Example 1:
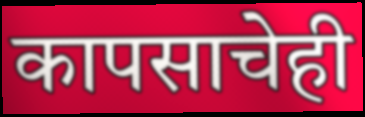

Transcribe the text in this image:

कापसाचेही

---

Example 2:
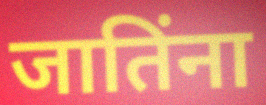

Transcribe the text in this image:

जातिंना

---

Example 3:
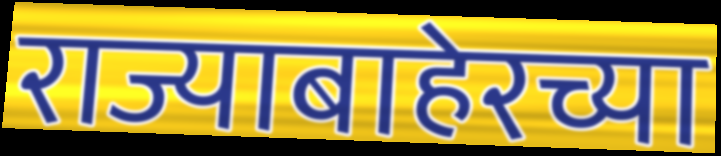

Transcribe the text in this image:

राज्याबाहेरच्या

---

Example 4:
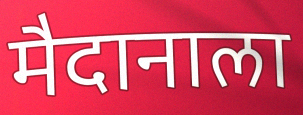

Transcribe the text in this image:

मैदानाला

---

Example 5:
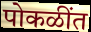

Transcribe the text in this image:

पोकळींत